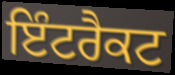
ਇੰਟਰੈਕਟ